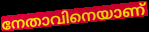
നേതാവിനെയാണ്